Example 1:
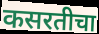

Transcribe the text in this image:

कसरतीचा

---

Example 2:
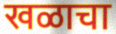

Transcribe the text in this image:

खळाचा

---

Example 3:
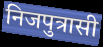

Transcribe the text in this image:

निजपुत्रासी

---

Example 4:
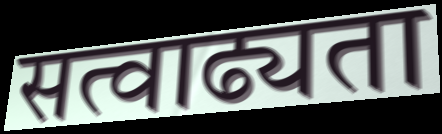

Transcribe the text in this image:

सत्वाढ्यता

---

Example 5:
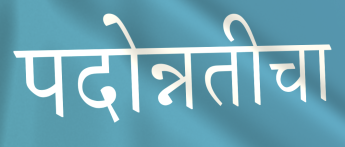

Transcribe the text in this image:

पदोन्नतीचा